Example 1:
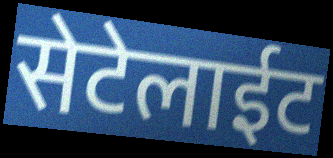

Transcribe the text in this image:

सेटेलाईट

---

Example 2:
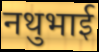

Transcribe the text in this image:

नथुभाई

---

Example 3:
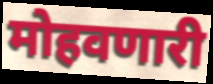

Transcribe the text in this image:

मोहवणारी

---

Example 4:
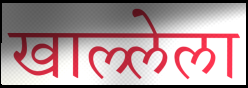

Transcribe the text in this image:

खाल्लेला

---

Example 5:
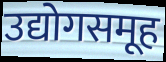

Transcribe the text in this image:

उद्योगसमूह